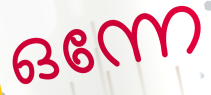
ഒന്നേ